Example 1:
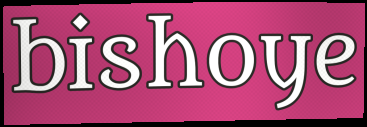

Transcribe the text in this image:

bishoye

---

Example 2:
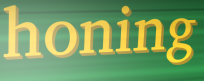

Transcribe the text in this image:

honing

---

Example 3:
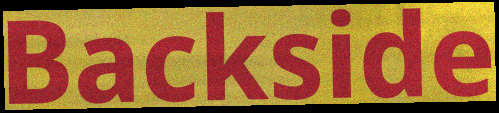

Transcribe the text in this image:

Backside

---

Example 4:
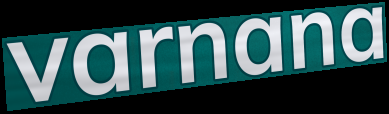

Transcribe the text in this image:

varnana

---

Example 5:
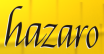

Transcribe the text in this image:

hazaro